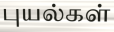
புயல்கள்